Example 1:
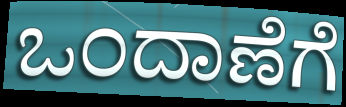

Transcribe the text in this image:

ಒಂದಾಣೆಗೆ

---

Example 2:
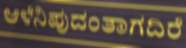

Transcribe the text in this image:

ಆಳೆನಿಪುದಂತಾಗದಿರೆ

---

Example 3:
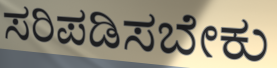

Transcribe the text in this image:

ಸರಿಪಡಿಸಬೇಕು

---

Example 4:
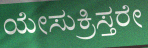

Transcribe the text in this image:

ಯೇಸುಕ್ರಿಸ್ತರೇ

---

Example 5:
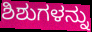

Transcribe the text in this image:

ಶಿಶುಗಳನ್ನು